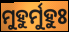
ମୁହୁର୍ମୁହୁଃ